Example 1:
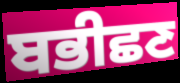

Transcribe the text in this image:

ਬਭੀਛਣ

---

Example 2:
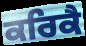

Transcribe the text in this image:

ਕਰਿਕੈ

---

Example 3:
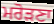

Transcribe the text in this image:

ਮਰੋੜਣਾ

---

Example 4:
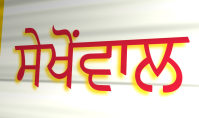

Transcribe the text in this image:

ਸੇਖੋਂਵਾਲ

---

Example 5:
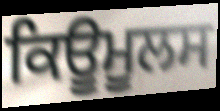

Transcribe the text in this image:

ਕਿਊਮੂਲਸ